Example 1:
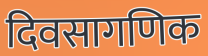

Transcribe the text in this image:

दिवसागणिक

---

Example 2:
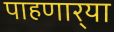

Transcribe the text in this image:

पाहणार्‍या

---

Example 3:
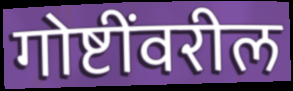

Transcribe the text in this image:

गोष्टींवरील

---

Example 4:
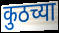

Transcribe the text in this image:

कुठच्या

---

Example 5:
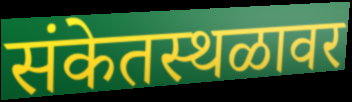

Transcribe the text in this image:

संकेतस्थळावर